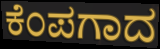
ಕೆಂಪಗಾದ